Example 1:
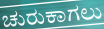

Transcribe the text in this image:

ಚುರುಕಾಗಲು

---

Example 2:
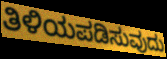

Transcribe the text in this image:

ತಿಳಿಯಪಡಿಸುವುದು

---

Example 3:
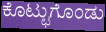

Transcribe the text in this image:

ಕೊಟ್ಟುಗೊಂಡು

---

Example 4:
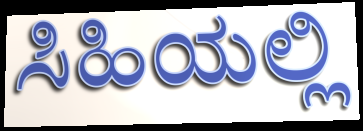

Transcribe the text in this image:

ಸಿಹಿಯಲ್ಲಿ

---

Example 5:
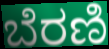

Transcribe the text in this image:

ಬೆರಣಿ